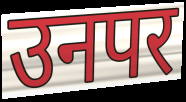
उनपर